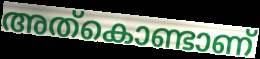
അത്കൊണ്ടാണ്